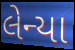
લેન્યા